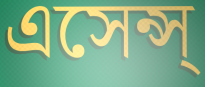
এসেন্স্